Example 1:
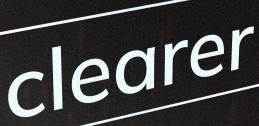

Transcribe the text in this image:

clearer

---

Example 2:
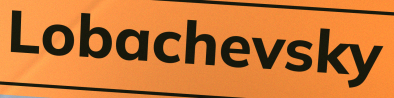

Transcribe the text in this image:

Lobachevsky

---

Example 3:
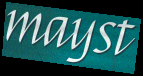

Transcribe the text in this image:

mayst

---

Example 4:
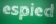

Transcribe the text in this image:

espied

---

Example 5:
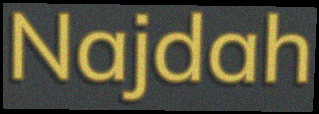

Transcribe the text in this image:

Najdah